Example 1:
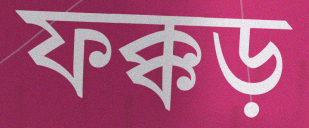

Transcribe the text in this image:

ফক্কড়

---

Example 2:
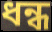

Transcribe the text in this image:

ধন্ধ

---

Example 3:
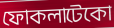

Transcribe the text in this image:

ফোকলাটেকো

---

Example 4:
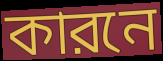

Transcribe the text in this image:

কারনে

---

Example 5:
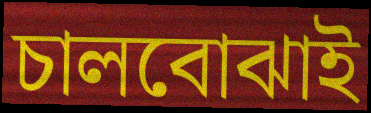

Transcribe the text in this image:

চালবোঝাই